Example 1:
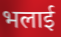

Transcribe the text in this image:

भलाई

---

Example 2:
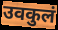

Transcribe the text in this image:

उवकुलं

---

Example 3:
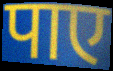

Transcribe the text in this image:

पाए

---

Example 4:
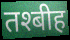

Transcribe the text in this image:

तश्बीह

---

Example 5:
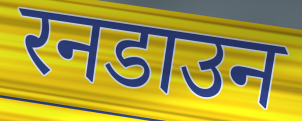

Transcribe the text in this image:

रनडाउन